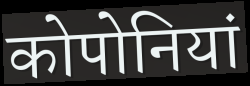
कोपोनियां